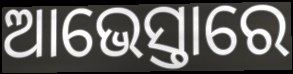
ଆଭେସ୍ତାରେ